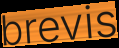
brevis